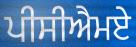
ਪੀਸੀਐਮਏ